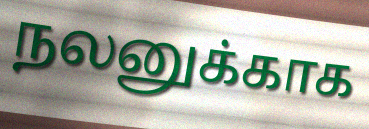
நலனுக்காக